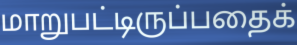
மாறுபட்டிருப்பதைக்